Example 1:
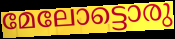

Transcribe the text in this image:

മേലോട്ടൊരു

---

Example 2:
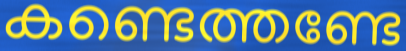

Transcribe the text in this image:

കണ്ടെത്തണ്ടേ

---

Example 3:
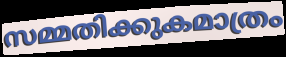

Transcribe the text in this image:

സമ്മതിക്കുകമാത്രം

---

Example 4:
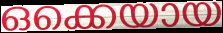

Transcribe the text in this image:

ഒക്കെയായ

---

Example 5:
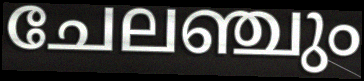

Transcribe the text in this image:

ചേലഞ്ചും